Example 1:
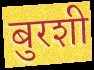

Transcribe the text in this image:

बुरशी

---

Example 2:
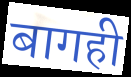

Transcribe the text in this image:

बागही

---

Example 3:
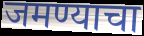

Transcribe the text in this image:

जमण्याचा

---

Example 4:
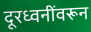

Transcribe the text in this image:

दूरध्वनींवरून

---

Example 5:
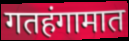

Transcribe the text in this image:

गतहंगामात